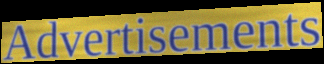
Advertisements